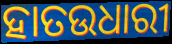
ହାତଉଧାରୀ